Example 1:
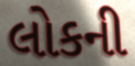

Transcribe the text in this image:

લોકની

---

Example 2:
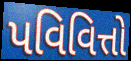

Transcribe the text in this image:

પવિવિત્તો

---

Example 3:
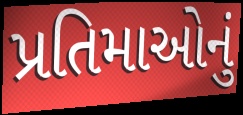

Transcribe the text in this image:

પ્રતિમાઓનું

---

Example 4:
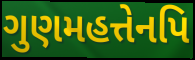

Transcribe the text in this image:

ગુણમહત્તેનપિ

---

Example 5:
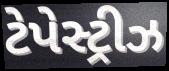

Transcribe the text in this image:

ટેપેસ્ટ્રીઝ